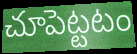
చూపెట్టటం